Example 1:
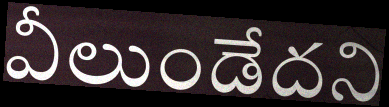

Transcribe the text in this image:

వీలుండేదని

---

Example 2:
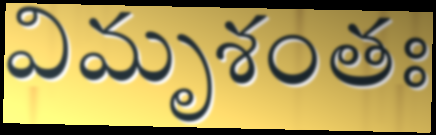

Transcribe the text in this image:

విమృశంతః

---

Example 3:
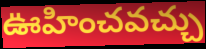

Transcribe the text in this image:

ఊహించవచ్చు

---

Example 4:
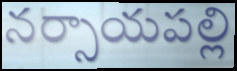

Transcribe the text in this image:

నర్సాయపల్లి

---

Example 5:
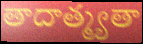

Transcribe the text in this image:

తాదాత్మ్యతా